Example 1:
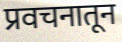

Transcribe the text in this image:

प्रवचनातून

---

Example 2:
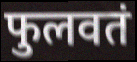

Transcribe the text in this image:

फुलवतं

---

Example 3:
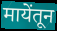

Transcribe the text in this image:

मायेंतून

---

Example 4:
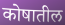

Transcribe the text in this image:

कोषातील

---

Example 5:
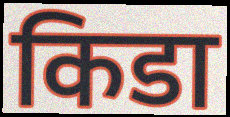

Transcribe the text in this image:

किडा